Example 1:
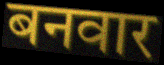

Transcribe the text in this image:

बनवार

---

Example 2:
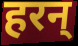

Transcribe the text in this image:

हरन्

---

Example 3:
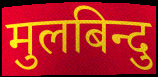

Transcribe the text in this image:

मुलबिन्दु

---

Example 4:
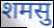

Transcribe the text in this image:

शमसु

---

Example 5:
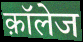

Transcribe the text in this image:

क़ॉलेज